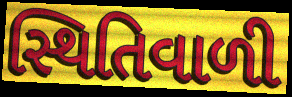
સ્થિતિવાળી